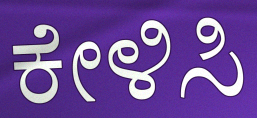
ಕೇಳಿಸಿ